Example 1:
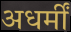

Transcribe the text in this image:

अधर्मीं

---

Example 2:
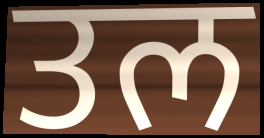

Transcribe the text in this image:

उल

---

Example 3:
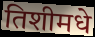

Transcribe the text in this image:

तिशीमधे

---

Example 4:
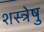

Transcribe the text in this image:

शस्त्रेषु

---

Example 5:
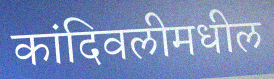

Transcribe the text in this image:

कांदिवलीमधील